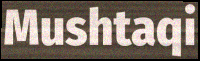
Mushtaqi